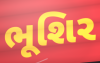
ભૂશિર